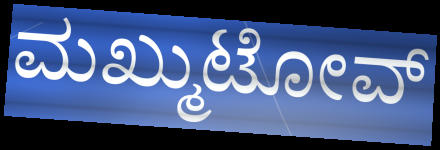
ಮಖ್ಮುಟೋವ್